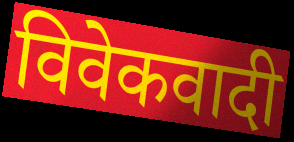
विवेकवादी